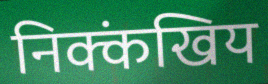
निक्कंखिय